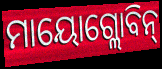
ମାୟୋଗ୍ଲୋବିନ୍